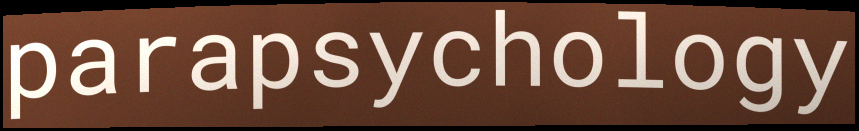
parapsychology